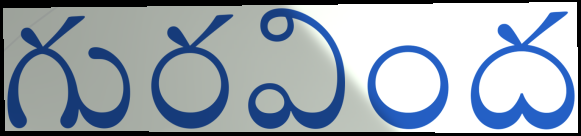
గురవింద